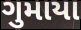
ગુમાયા